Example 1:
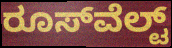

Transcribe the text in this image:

ರೂಸ್‍ವೆಲ್ಟ್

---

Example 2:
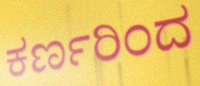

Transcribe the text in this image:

ಕರ್ಣರಿಂದ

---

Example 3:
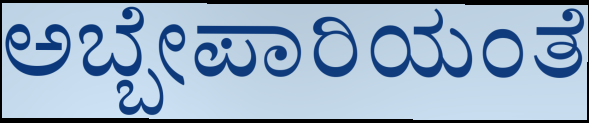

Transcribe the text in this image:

ಅಬ್ಬೇಪಾರಿಯಂತೆ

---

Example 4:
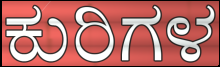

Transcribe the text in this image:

ಕುರಿಗಳ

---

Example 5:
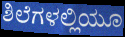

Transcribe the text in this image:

ಶಿಲೆಗಳಲ್ಲಿಯೂ